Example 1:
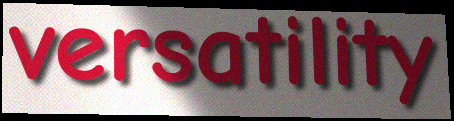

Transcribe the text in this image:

versatility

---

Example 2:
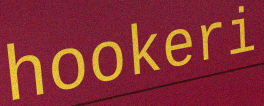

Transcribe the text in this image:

hookeri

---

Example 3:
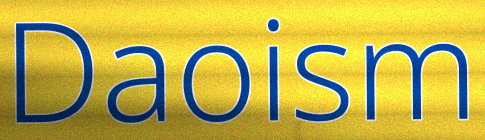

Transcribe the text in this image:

Daoism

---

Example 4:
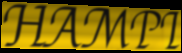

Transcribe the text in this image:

HAMPI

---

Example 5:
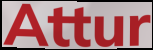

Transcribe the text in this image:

Attur